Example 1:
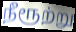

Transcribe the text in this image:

நீரூற்று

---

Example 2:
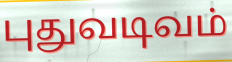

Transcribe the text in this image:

புதுவடிவம்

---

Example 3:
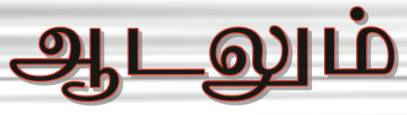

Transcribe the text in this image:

ஆடலும்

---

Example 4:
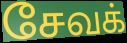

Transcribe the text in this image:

சேவக்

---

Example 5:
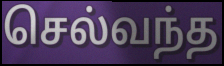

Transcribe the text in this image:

செல்வந்த